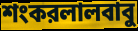
শংকরলালবাবু